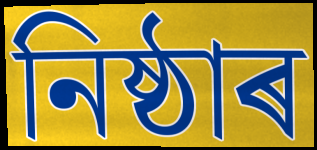
নিষ্ঠাৰ